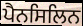
ਪੈਨਸਿਲਿਨ